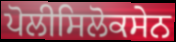
ਪੋਲੀਸਿਲੋਕਸੇਨ